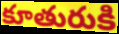
కూతురుకి